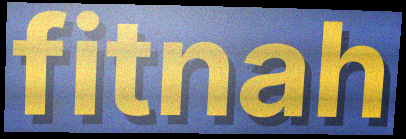
fitnah